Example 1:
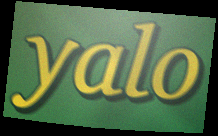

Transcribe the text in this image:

yalo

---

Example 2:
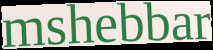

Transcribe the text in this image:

mshebbar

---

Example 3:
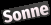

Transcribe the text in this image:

Sonne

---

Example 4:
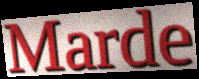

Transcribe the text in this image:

Marde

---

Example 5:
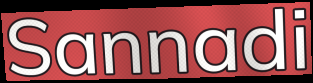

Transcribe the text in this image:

Sannadi